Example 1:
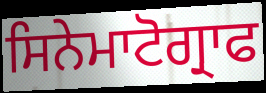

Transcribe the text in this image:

ਸਿਨੇਮਾਟੋਗ੍ਰਾਫ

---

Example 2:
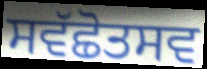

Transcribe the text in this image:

ਸਵੱਛੋਤਸਵ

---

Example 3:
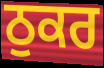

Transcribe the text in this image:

ਠੁਕਰ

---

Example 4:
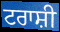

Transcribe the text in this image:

ਟਰਾਸ਼ੀ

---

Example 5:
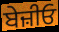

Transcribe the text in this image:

ਬੇਜ਼ੀਓ